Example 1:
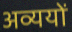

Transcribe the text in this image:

अव्ययों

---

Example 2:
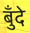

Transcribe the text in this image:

बुँदे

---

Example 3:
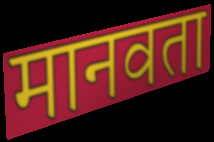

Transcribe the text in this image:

मानवता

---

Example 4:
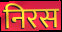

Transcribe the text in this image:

निरस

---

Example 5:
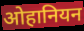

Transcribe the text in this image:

ओहानियन